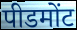
पीडमोंट